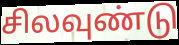
சிலவுண்டு